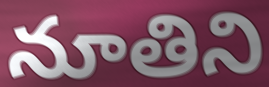
నూతిని